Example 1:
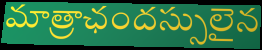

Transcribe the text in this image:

మాత్రాఛందస్సులైన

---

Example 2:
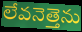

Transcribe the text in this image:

లేవనెత్తెను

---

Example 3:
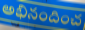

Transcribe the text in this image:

అభినందించ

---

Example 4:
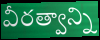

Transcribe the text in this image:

వీరత్వాన్ని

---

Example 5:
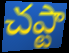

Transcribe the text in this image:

చఎ్టా